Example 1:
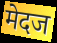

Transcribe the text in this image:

मेदज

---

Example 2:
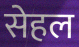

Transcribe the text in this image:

सेहल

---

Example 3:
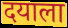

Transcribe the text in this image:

दयाला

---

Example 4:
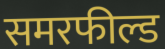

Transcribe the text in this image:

समरफील्ड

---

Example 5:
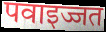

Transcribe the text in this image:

पवाइज्जत